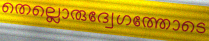
തെല്ലൊരുദ്വേഗത്തോടെ